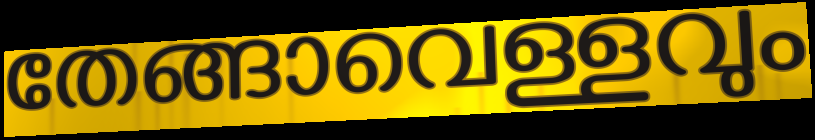
തേങ്ങാവെള്ളവും